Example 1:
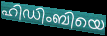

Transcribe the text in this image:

ഹിഡിംബിയെ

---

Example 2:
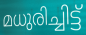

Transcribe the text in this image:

മധുരിച്ചിട്ട്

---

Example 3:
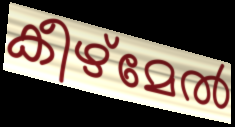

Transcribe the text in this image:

കീഴ്മേൽ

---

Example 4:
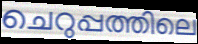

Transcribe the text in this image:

ചെറുപ്പത്തിലെ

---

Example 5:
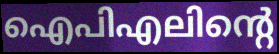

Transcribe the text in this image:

ഐപിഎലിന്റെ